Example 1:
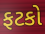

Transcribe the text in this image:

ફટકો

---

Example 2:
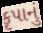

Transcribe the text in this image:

કૃપાનું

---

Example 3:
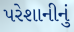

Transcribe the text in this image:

પરેશાનીનું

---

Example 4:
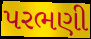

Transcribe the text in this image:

પરભણી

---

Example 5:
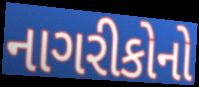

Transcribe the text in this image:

નાગરીકોનો